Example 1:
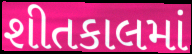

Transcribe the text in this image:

શીતકાલમાં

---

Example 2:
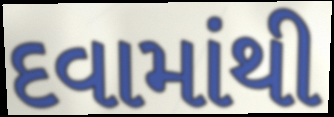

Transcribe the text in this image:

દવામાંથી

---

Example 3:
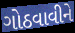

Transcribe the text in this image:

ગોઠવાવીને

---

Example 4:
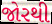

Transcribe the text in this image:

જોરથી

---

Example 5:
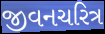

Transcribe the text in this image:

જીવનચરિત્ર